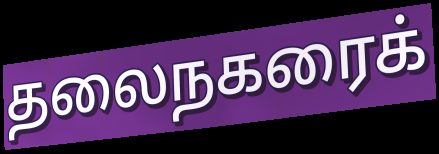
தலைநகரைக்